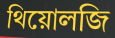
থিয়োলজি